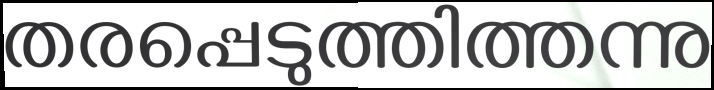
തരപ്പെടുത്തിത്തന്നു